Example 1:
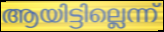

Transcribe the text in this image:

ആയിട്ടില്ലെന്ന്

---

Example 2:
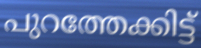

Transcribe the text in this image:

പുറത്തേക്കിട്ട്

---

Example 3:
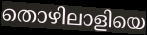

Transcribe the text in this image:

തൊഴിലാളിയെ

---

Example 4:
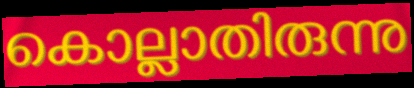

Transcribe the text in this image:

കൊല്ലാതിരുന്നു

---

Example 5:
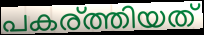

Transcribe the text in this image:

പകര്ത്തിയത്